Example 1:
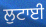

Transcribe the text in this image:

ਲੁਟਾਈ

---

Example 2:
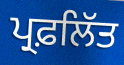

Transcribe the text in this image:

ਪ੍ਰਫ਼ਲਿੱਤ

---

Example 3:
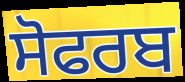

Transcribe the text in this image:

ਸੋਫਰਬ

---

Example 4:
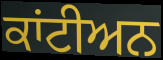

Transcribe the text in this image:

ਕਾਂਟੀਅਨ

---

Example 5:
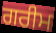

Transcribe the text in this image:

ਗਰੀਮ